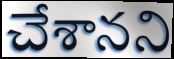
చేశానని